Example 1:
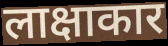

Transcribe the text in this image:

लाक्षाकार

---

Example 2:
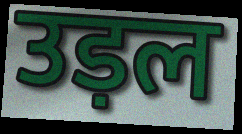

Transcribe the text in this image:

उड़ल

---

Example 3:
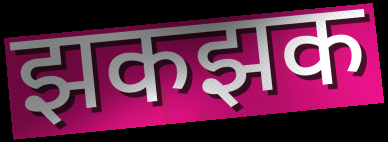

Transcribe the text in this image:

झकझक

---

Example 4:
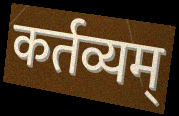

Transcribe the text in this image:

कर्तव्यम्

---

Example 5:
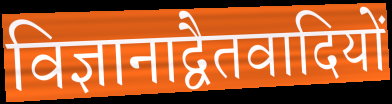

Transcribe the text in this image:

विज्ञानाद्वैतवादियों